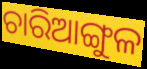
ଚାରିଆଙ୍ଗୁଳ